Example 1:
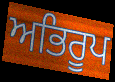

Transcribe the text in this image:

ਅਭਿਰੂਪ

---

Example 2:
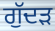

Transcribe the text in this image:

ਗੁੱਦੜ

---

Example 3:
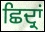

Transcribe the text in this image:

ਛਿਦ੍ਰਾਂ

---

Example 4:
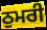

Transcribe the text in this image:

ਠੁਮਰੀ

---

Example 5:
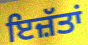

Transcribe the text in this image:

ਇਜ਼ੱਤਾਂ